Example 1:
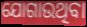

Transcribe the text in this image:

ଯୋଗାଉଥିବା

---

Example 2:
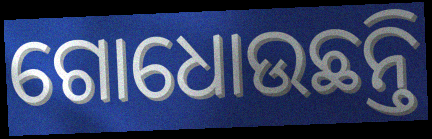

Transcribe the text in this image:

ଗୋଧୋଉଛନ୍ତି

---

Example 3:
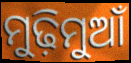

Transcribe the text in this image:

ମୁଢ଼ିମୁଆଁ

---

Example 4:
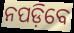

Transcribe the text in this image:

ନପଡ଼ିବେ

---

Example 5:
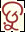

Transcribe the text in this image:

ଡ଼ୁ